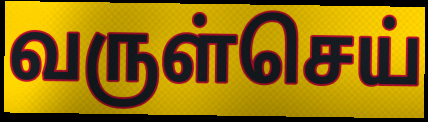
வருள்செய்